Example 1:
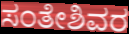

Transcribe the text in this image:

ಸಂತೇಶಿವರ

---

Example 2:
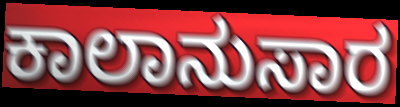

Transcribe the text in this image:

ಕಾಲಾನುಸಾರ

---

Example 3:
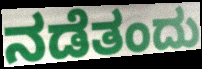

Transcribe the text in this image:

ನಡೆತಂದು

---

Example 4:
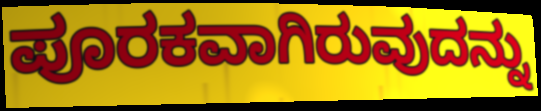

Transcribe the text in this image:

ಪೂರಕವಾಗಿರುವುದನ್ನು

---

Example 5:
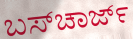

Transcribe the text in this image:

ಬಸ್‌ಚಾರ್ಜ್